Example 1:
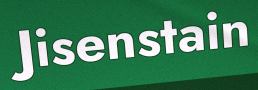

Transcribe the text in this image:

Jisenstain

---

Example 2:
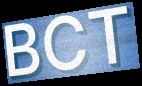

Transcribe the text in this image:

BCT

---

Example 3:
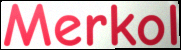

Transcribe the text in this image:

Merkol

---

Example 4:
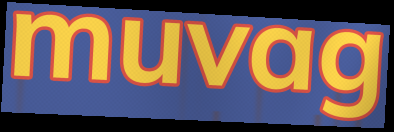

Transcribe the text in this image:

muvag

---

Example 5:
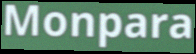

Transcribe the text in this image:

Monpara